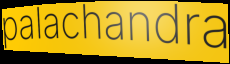
palachandra